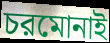
চরমোনাই